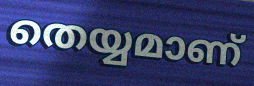
തെയ്യമാണ്